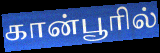
கான்பூரில்